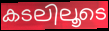
കടലിലൂടെ